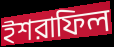
ইশরাফিল